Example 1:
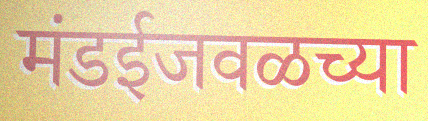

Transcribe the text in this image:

मंडईजवळच्या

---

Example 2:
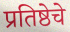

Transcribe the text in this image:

प्रतिष्ठेचे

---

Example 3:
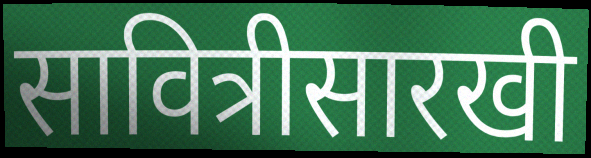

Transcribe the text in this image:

सावित्रीसारखी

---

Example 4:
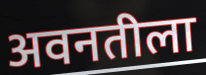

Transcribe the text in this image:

अवनतीला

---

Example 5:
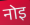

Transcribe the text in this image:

नोइ